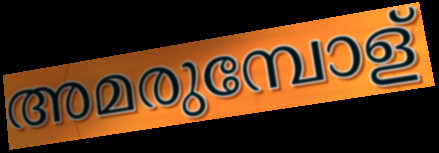
അമരുമ്പോള്